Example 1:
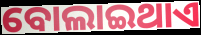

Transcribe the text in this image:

ବୋଲାଇଥାଏ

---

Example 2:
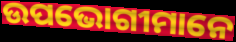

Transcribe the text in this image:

ଉପଭୋଗୀମାନେ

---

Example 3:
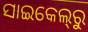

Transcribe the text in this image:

ସାଇକେଲ୍‌ରୁ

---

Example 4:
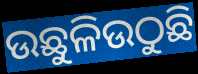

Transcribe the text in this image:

ଉଛୁଳିଉଠୁଛି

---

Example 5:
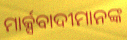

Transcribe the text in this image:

ମାର୍କ୍ସବାଦୀମାନଙ୍କ